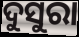
ଦୁସୁରା